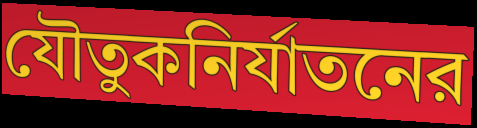
যৌতুকনির্যাতনের